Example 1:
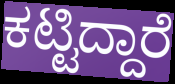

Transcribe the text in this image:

ಕಟ್ಟಿದ್ದಾರೆ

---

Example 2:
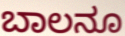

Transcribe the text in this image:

ಬಾಲನೂ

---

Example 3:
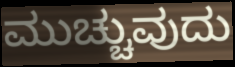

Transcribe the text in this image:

ಮುಚ್ಚುವುದು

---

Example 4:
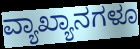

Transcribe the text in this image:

ವ್ಯಾಖ್ಯಾನಗಳೂ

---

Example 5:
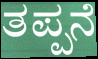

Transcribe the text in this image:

ತಪ್ಪನೆ